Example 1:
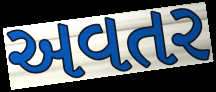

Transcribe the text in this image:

અવતર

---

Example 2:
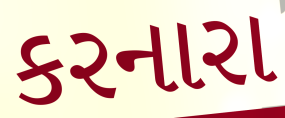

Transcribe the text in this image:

કરનારા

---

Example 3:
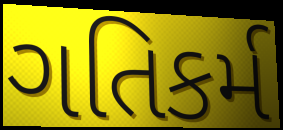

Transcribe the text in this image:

ગતિકર્મ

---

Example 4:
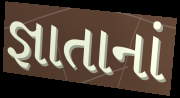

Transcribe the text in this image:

જ્ઞાતાનાં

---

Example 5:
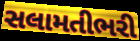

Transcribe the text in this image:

સલામતીભરી